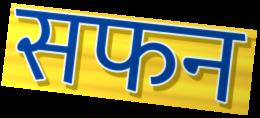
सफन